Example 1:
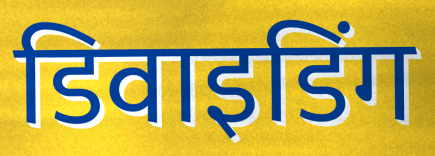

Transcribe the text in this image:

डिवाइडिंग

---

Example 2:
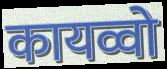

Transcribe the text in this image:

कायव्वो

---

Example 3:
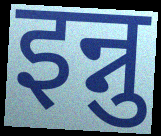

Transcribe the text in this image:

इन्नु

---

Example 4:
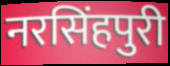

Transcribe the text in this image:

नरसिंहपुरी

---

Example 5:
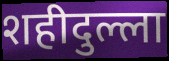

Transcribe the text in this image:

शहीदुल्ला